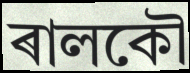
ৰালকৌ